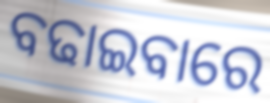
ବଢାଇବାରେ